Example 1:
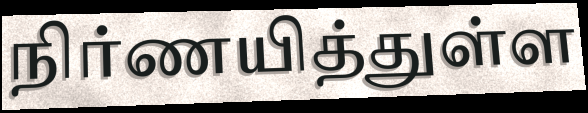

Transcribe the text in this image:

நிர்ணயித்துள்ள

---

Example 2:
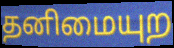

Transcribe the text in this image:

தனிமையுற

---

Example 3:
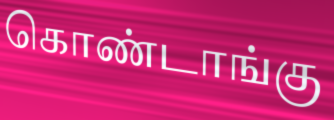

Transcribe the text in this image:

கொண்டாங்கு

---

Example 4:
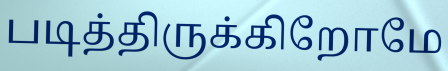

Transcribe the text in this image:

படித்திருக்கிறோமே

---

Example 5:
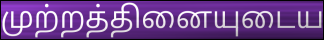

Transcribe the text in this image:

முற்றத்தினையுடைய